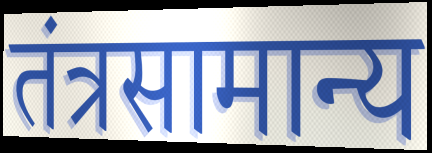
तंत्रसामान्य